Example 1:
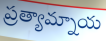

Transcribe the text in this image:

ప్రత్యామ్నాయ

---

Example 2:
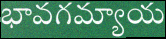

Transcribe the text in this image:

భావగమ్యాయ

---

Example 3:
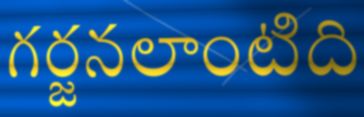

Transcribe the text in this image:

గర్జనలాంటిది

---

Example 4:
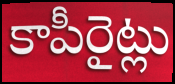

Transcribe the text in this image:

కాపీరైట్లు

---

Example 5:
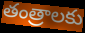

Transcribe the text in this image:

తంత్రాలకు